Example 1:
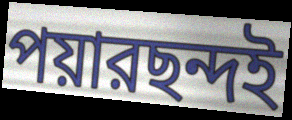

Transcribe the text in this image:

পয়ারছন্দই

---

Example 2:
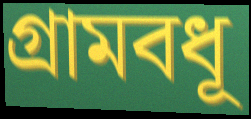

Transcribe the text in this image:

গ্রামবধূ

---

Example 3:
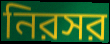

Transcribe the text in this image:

নিরসর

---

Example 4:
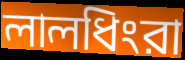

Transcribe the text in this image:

লালধিংরা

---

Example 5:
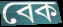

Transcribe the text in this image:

বেক